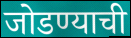
जोडण्याची